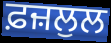
ਫ਼ਜ਼ਲੁਲ